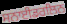
ਸਨਾਈਡਰਲਿਨ